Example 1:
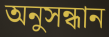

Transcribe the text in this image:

অনুসন্ধান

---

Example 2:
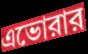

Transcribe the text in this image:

এভোরার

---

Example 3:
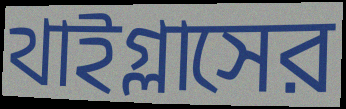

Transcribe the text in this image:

থাইগ্লাসের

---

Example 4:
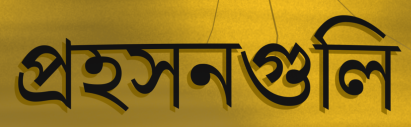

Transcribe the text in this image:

প্রহসনগুলি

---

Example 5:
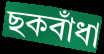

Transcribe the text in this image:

ছকবাঁধা